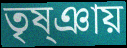
তৃষ্ঞায়